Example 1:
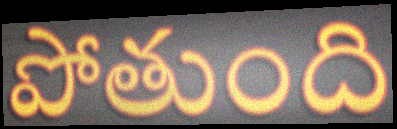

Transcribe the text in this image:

పోతుంది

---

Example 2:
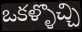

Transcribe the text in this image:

ఒకళ్ళొచ్చి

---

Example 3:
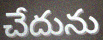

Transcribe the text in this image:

చేదును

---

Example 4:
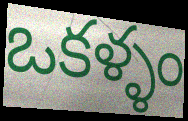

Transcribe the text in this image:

ఒకళ్ళం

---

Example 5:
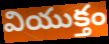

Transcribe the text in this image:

వియుక్తం